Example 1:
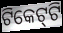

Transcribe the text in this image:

ଟିକେଟ୍‌ଟି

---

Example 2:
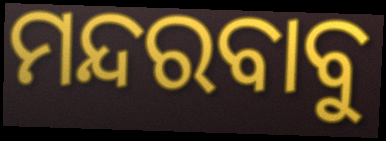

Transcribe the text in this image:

ମନ୍ଦରବାବୁ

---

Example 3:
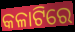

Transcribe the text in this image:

କଳାଟିରେ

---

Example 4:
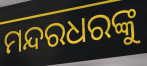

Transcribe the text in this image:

ମନ୍ଦରଧରଙ୍କୁ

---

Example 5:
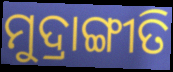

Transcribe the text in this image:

ମୁଦ୍ରାଙ୍ଗୀତି